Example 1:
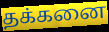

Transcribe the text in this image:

தக்கனை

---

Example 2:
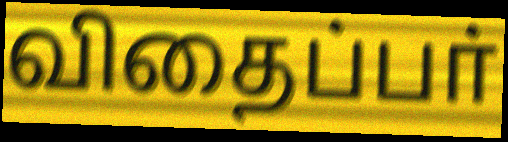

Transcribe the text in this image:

விதைப்பர்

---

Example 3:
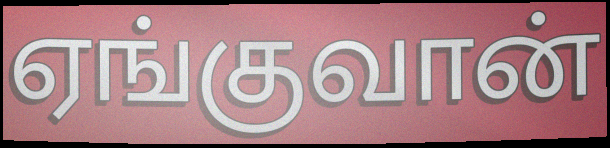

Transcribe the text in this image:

ஏங்குவான்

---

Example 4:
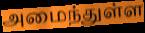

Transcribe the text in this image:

அமைந்துள்ள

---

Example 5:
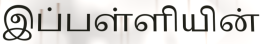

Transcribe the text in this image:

இப்பள்ளியின்